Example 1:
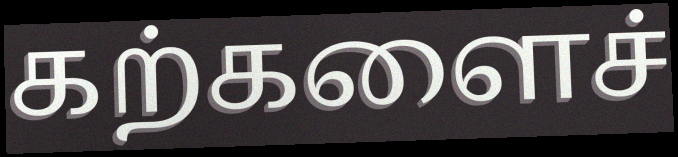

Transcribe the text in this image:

கற்களைச்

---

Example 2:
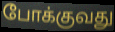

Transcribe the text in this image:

போக்குவது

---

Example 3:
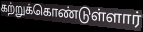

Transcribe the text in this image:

கற்றுக்கொண்டுள்ளார்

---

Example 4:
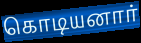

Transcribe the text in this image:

கொடியனார்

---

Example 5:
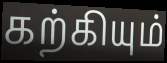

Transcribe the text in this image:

கற்கியும்